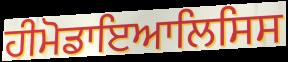
ਹੀਮੋਡਾਇਆਲਿਸਿਸ